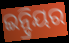
ଇନ୍ଦ୍ରିୟର